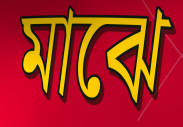
মাঝে